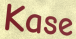
Kase